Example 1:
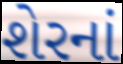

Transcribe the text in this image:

શેરનાં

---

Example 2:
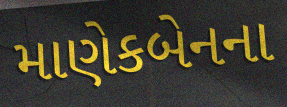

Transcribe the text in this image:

માણેકબેનના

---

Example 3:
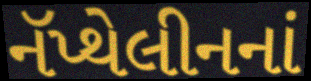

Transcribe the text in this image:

નૅપ્થેલીનનાં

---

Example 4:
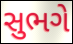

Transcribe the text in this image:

સુભગે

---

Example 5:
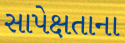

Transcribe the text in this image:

સાપેક્ષતાના